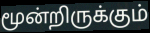
மூன்றிருக்கும்